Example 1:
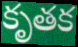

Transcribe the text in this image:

కృతక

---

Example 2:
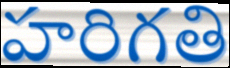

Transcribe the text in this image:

హరిగతి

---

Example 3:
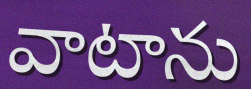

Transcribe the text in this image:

వాటాను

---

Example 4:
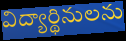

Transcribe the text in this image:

విద్యార్థినులను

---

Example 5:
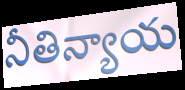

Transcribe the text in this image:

నీతిన్యాయ